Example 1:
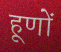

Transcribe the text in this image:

हूणों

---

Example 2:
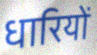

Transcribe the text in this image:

धारियों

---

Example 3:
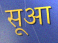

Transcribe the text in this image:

सूआ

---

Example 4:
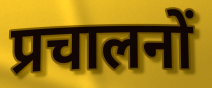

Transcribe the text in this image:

प्रचालनों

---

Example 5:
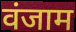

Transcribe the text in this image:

वंजाम